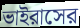
ভাইরাসের